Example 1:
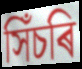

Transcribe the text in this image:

সিঁচৰি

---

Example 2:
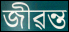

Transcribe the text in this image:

জীৱন্ত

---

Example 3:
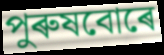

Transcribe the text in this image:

পুৰুষবোৰে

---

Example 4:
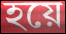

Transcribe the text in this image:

হয়ে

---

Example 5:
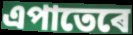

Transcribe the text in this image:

এপাতেৰে